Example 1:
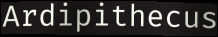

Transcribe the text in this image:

Ardipithecus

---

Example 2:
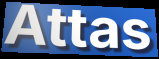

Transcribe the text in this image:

Attas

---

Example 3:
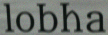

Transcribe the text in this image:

lobha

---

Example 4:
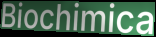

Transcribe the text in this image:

Biochimica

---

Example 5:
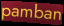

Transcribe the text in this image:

pamban